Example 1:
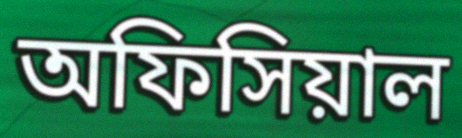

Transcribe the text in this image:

অফিসিয়াল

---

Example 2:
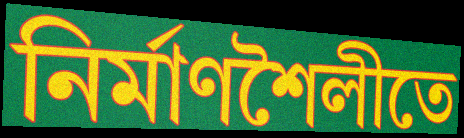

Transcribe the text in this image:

নির্মাণশৈলীতে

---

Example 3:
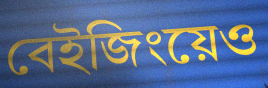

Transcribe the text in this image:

বেইজিংয়েও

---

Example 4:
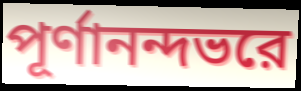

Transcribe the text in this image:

পূর্ণানন্দভরে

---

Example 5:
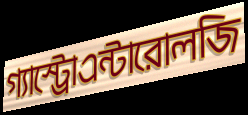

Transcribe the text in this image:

গ্যাস্ট্রোএন্টারোলজি